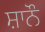
ਸ਼ਾਨੌ